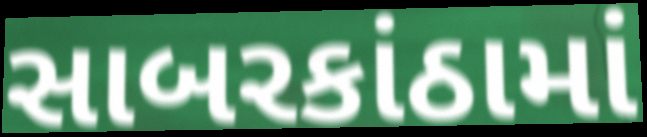
સાબરકાંઠામાં